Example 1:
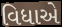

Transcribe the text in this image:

વિધાએ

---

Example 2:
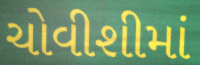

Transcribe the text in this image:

ચોવીશીમાં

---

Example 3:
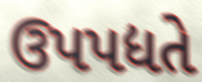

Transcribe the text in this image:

ઉપપદ્યતે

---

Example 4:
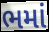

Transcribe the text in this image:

ભમાં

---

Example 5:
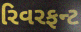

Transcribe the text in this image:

રિવરફન્ટ